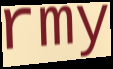
rmy